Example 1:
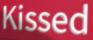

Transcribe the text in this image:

Kissed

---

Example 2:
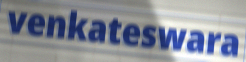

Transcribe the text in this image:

venkateswara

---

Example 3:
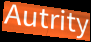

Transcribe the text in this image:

Autrity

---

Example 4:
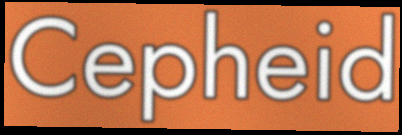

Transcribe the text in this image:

Cepheid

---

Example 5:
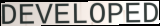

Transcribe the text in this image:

DEVELOPED